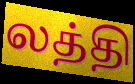
லத்தி